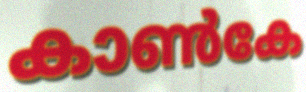
കാൺകേ